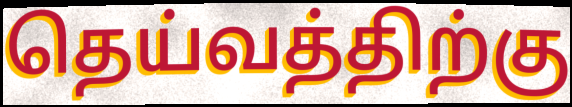
தெய்வத்திற்கு